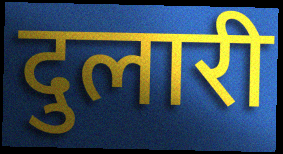
दुलारी